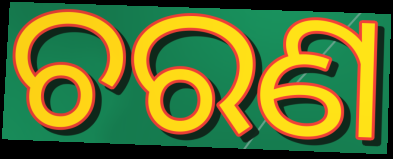
ଚରଣ